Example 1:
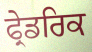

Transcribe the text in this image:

ਫ੍ਰੇਡਰਿਕ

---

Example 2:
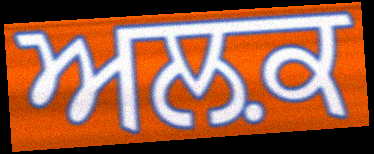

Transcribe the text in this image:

ਅਲ਼ਕ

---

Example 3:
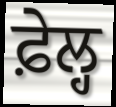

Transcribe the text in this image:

ਫ਼ੇਲ੍ਹ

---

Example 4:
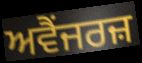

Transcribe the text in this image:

ਅਵੈਂਜਰਜ਼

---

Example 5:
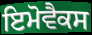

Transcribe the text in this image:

ਇਮੋਵੈਕਸ